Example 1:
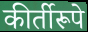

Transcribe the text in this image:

कीर्तीरूपे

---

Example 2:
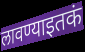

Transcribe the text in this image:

लावण्याइतकं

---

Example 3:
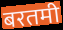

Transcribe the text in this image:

बरतमी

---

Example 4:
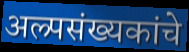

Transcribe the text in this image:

अल्पसंख्यकांचे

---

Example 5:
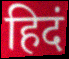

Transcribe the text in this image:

हिदं